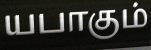
யபாகும்